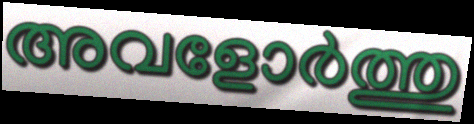
അവളോർത്തു